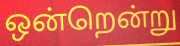
ஒன்றென்று